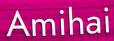
Amihai